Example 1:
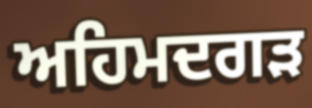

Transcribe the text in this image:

ਅਹਿਮਦਗੜ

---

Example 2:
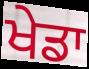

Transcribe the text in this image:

ਖੇਡਾ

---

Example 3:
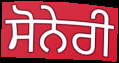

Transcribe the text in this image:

ਸੋਨੇਰੀ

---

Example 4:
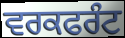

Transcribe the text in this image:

ਵਰਕਫਰੰਟ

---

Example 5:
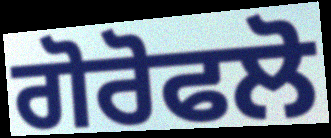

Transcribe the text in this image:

ਗੋਰੋਫਲੋ